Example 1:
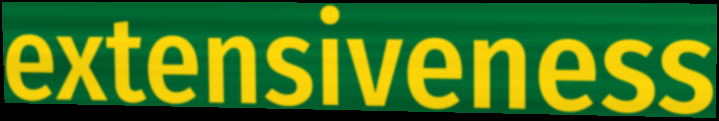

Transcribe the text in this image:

extensiveness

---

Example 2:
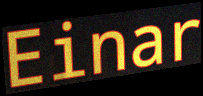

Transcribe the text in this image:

Einar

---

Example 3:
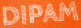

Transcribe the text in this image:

DIPAM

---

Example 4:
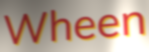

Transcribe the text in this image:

Wheen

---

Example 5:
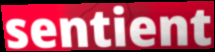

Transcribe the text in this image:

sentient